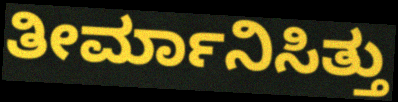
ತೀರ್ಮಾನಿಸಿತ್ತು